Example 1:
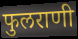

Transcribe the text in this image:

फुलराणी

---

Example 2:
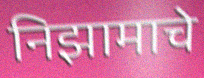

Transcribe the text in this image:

निझामाचे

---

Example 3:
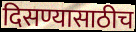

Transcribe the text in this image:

दिसण्यासाठीच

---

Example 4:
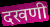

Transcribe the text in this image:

दखणी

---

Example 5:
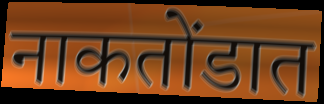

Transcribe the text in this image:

नाकतोंडात